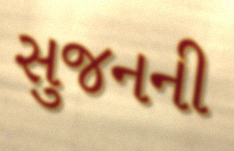
સુજનની